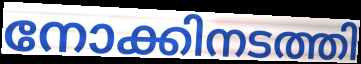
നോക്കിനടത്തി